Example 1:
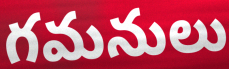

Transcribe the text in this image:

గమనులు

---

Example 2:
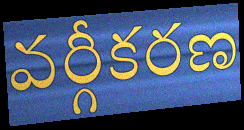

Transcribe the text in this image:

వర్గీకరణ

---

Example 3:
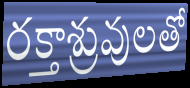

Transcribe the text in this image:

రక్తాశ్రువులతో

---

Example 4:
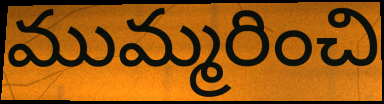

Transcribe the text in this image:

ముమ్మరించి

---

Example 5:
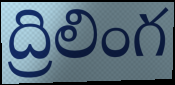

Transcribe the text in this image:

ద్రిలింగ